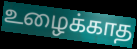
உழைக்காத